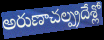
అరుణాచల్ప్రదేశ్లో